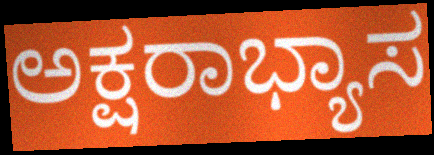
ಅಕ್ಷರಾಭ್ಯಾಸ